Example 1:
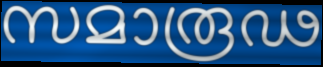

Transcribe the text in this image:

സമാരൂഢ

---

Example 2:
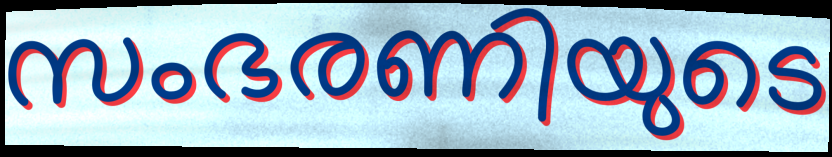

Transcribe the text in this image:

സംഭരണിയുടെ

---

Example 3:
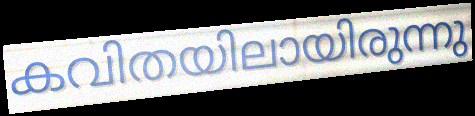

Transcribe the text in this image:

കവിതയിലായിരുന്നു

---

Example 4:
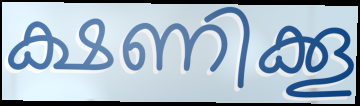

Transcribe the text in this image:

ക്ഷണിക്കൂ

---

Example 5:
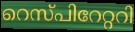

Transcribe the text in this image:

റെസ്പിറേറ്ററി